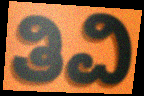
ತಿವಿ